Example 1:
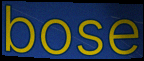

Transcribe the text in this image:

bose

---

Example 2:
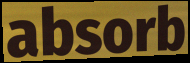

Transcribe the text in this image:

absorb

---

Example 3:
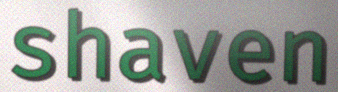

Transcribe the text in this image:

shaven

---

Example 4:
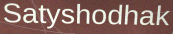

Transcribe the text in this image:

Satyshodhak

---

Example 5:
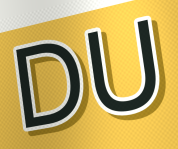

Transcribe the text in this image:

DU